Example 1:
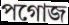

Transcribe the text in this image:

পগোজ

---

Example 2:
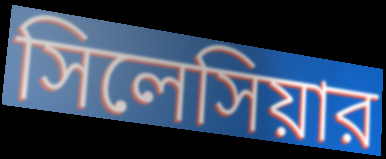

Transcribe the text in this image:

সিলেসিয়ার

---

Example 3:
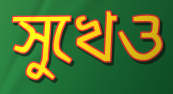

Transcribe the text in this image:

সুখেও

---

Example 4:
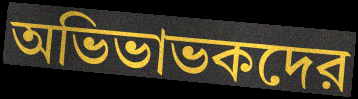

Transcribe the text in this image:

অভিভাভকদের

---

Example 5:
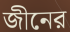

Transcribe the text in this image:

জীনের